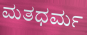
ಮತಧರ್ಮ